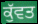
ਕੁੱਵਤ